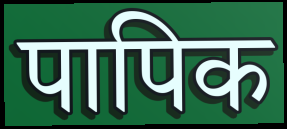
पापिक